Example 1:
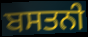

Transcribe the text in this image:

ਬਸਤਨੀ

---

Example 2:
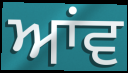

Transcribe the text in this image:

ਆਂਵ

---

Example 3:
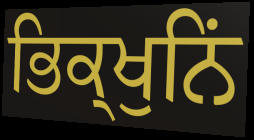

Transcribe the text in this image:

ਭਿਕ੍ਖੁਨਿਂ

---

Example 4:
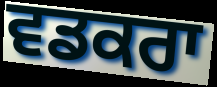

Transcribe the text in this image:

ਵਡਕਰਾ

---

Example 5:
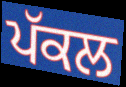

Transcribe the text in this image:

ਪੱਕਲ